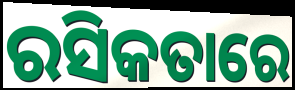
ରସିକତାରେ